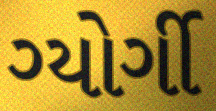
ગ્યોર્ગી